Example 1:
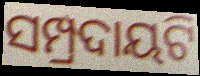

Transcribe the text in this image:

ସମ୍ପ୍ରଦାୟଟି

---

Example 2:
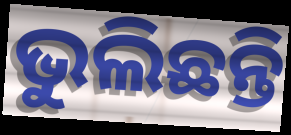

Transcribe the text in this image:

ଭୁଲିଛନ୍ତି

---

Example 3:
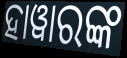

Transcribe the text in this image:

ହାୱାରଙ୍କ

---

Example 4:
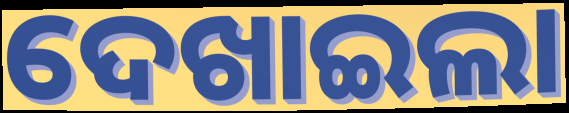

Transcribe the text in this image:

ଦେଖାଇଲା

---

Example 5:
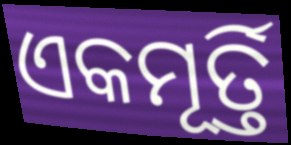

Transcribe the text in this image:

ଏକମୂର୍ତ୍ତି